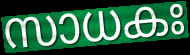
സാധകഃ